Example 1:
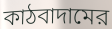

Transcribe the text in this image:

কাঠবাদামের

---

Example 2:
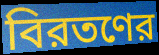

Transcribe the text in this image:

বিরতণের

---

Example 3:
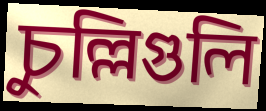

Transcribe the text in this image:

চুল্লিগুলি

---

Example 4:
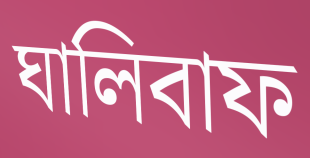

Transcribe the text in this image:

ঘালিবাফ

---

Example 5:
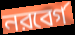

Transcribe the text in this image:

নরবের্গ